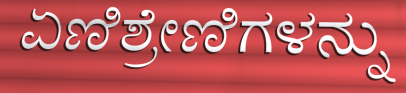
ಏಣಿಶ್ರೇಣಿಗಳನ್ನು